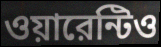
ওয়ারেন্টিও